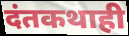
दंतकथाही